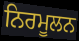
ਨਿਰਮੂਲਨ